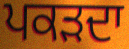
ਪਕੜਦਾ